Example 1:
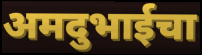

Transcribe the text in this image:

अमदुभाईचा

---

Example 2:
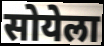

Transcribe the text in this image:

सोयेला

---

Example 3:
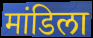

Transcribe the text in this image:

मांडिला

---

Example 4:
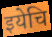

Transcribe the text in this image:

इयेचि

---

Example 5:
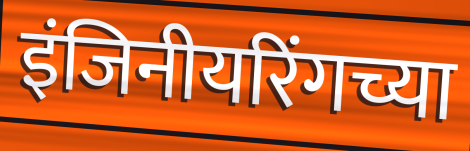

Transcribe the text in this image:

इंजिनीयरिंगच्या